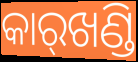
କାର୍‌ଖଣ୍ଡି